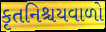
કૃતનિશ્ચયવાળો